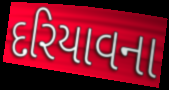
દરિયાવના